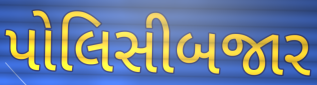
પોલિસીબજાર